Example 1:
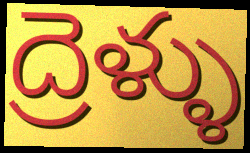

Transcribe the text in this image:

ద్రెళ్ళు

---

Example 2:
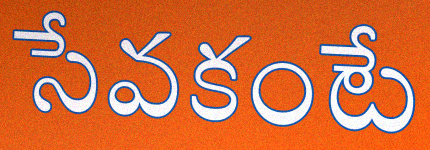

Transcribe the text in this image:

సేవకంటే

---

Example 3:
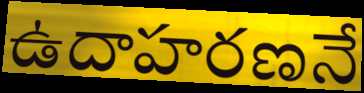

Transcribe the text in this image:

ఉదాహరణనే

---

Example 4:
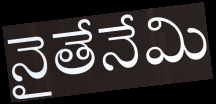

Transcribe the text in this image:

నైతేనేమి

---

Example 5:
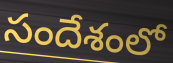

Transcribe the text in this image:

సందేశంలో